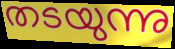
തടയുന്നു